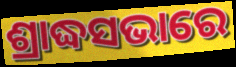
ଶ୍ରାଦ୍ଧସଭାରେ